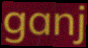
ganj